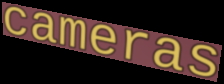
cameras